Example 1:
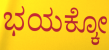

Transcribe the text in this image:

ಭಯಕ್ಕೋ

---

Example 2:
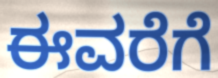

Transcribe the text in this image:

ಈವರೆಗೆ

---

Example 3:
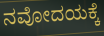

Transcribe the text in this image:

ನವೋದಯಕ್ಕೆ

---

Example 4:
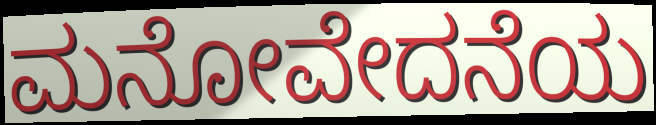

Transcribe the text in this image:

ಮನೋವೇದನೆಯ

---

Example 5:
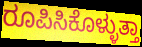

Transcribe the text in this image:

ರೂಪಿಸಿಕೊಳ್ಳುತ್ತಾ